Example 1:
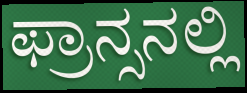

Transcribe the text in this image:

ಫ್ರಾನ್ಸನಲ್ಲಿ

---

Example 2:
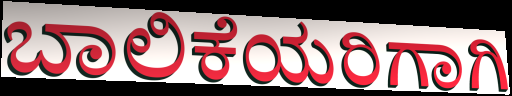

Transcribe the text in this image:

ಬಾಲಿಕೆಯರಿಗಾಗಿ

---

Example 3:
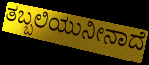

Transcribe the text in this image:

ತಬ್ಬಲಿಯುನೀನಾದೆ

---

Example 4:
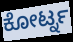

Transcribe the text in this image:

ಕೋರ್ಟ್ನ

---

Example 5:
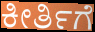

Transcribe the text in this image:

ಕೀರ್ತಿಗೆ